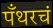
पँथरचं